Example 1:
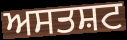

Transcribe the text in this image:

ਅਸਤਸ਼ਟ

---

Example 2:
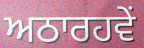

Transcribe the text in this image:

ਅਠਾਰਹਵੇਂ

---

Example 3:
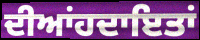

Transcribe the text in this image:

ਦੀਆਂਹਦਾਇਤਾਂ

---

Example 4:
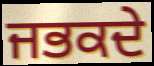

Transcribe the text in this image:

ਜਭਕਦੇ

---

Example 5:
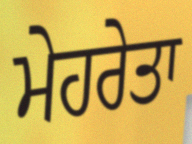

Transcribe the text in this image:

ਮੇਹਰੇਤਾ